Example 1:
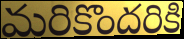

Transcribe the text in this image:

మరికొందరికి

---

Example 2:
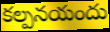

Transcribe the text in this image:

కల్పనయందు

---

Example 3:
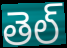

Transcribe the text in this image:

తెల్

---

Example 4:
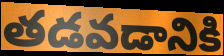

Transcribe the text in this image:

తడవడానికి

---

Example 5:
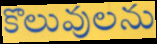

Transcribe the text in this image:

కొలువులను